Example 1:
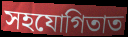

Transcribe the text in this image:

সহযোগিতাত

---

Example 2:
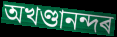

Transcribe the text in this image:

অখণ্ডানন্দৰ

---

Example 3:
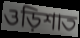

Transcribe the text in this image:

ওড়িশাত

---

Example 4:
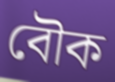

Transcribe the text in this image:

বৌক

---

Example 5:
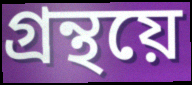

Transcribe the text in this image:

গ্ৰন্থয়ে